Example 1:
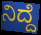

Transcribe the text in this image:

ನಿದ್ದೆ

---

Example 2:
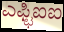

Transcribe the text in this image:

ಎಫ್ಟಿಐಐ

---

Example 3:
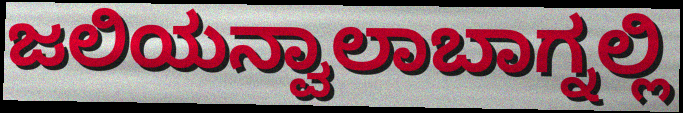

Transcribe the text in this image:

ಜಲಿಯನ್ವಾಲಾಬಾಗ್ನಲ್ಲಿ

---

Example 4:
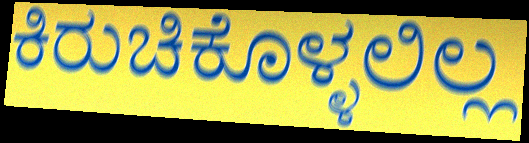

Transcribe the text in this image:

ಕಿರುಚಿಕೊಳ್ಳಲಿಲ್ಲ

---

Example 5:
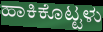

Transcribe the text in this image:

ಹಾಕಿಕೊಟ್ಟಳು